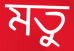
মতু